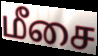
மீசை